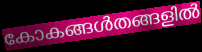
കോകങ്ങൾതങ്ങളിൽ